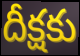
దీక్షకు